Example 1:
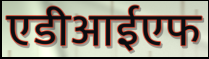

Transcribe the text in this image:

एडीआईएफ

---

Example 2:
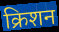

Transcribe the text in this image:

क्रिशन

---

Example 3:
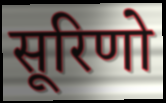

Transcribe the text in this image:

सूरिणो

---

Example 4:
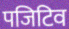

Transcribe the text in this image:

पजिटिव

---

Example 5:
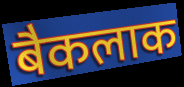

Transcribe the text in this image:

बैकलाक